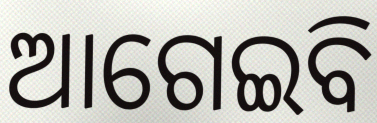
ଆଗେଇବି